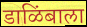
डाळिंबाला